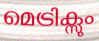
മെട്രിക്സും